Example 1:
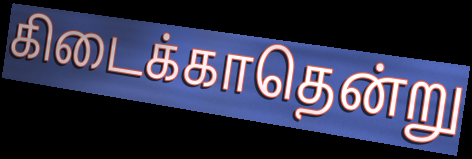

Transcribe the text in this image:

கிடைக்காதென்று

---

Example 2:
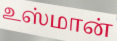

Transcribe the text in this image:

உஸ்மான்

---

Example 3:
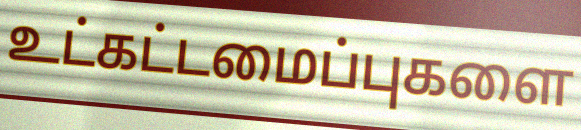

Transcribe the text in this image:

உட்கட்டமைப்புகளை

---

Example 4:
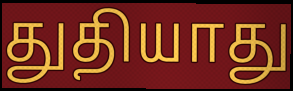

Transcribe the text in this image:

துதியாது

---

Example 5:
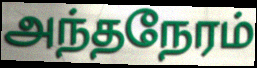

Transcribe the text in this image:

அந்தநேரம்